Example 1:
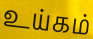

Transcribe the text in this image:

உய்கம்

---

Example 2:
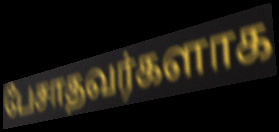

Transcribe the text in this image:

பேசாதவர்களாக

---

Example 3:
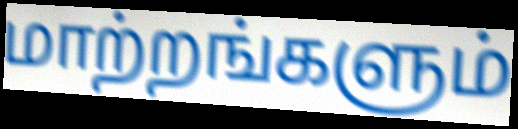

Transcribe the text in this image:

மாற்றங்களும்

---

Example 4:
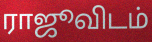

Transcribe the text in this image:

ராஜூவிடம்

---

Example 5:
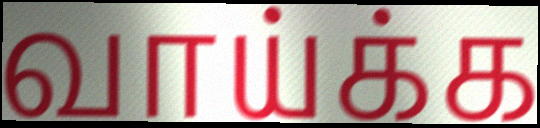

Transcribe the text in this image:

வாய்க்க